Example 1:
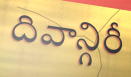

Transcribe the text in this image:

దివాన్గిరీ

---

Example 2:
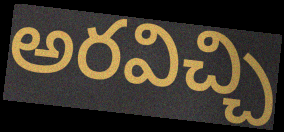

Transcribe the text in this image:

అరవిచ్చి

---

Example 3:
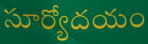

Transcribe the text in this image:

సూర్యోదయం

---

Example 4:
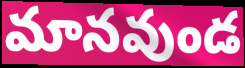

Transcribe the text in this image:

మానవుండ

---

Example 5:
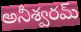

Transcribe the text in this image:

అనీశ్వరమ్